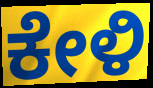
ಕೇಳಿ